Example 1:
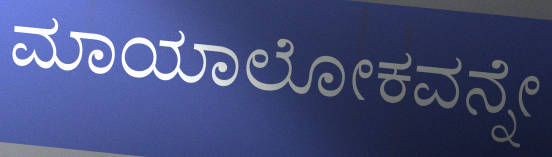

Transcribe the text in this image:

ಮಾಯಾಲೋಕವನ್ನೇ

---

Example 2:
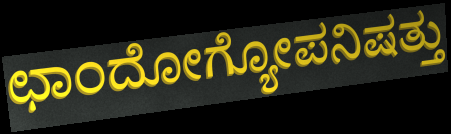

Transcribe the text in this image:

ಛಾಂದೋಗ್ಯೋಪನಿಷತ್ತು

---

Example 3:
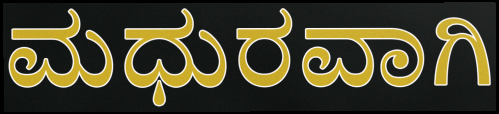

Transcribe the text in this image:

ಮಧುರವಾಗಿ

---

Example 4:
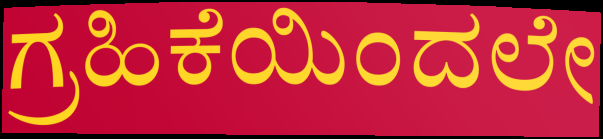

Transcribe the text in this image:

ಗ್ರಹಿಕೆಯಿಂದಲೇ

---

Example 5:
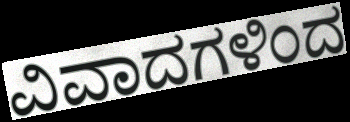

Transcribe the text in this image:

ವಿವಾದಗಳಿಂದ